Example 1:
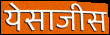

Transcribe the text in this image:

येसाजीस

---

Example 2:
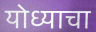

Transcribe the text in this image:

योध्याचा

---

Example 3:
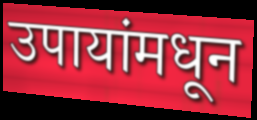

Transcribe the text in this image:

उपायांमधून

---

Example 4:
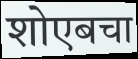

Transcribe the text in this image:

शोएबचा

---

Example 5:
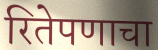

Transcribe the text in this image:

रितेपणाचा